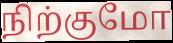
நிற்குமோ